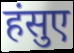
हंसुए